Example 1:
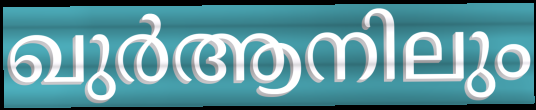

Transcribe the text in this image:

ഖുർആനിലും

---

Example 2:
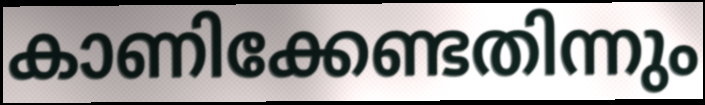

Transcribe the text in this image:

കാണിക്കേണ്ടതിന്നും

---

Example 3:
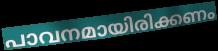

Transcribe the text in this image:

പാവനമായിരിക്കണം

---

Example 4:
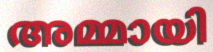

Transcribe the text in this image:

അമ്മായി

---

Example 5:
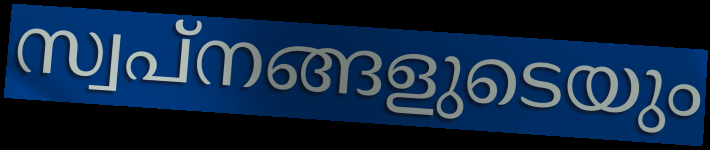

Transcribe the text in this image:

സ്വപ്നങ്ങളുടെയും